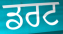
ਡਰਟ